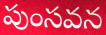
పుంసవన